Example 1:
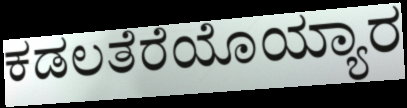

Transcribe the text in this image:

ಕಡಲತೆರೆಯೊಯ್ಯಾರ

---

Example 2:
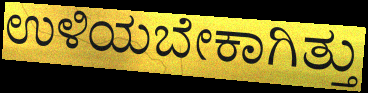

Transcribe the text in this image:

ಉಳಿಯಬೇಕಾಗಿತ್ತು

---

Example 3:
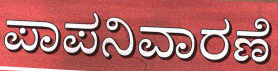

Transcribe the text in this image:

ಪಾಪನಿವಾರಣೆ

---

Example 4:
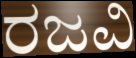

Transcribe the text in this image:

ರಜವಿ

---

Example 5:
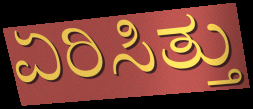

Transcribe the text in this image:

ಏರಿಸಿತ್ತು